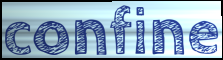
confine